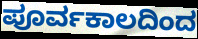
ಪೂರ್ವಕಾಲದಿಂದ